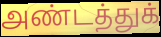
அண்டத்துக்